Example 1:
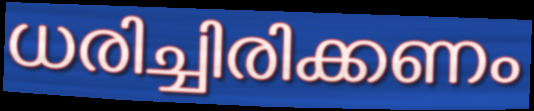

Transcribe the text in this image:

ധരിച്ചിരിക്കണം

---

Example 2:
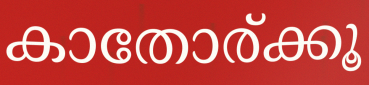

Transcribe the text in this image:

കാതോര്ക്കൂ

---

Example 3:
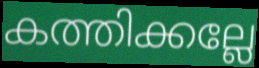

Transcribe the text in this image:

കത്തിക്കല്ലേ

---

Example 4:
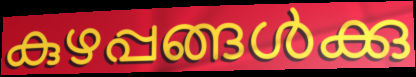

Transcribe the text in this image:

കുഴപ്പങ്ങൾക്കു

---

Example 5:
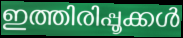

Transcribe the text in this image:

ഇത്തിരിപ്പൂക്കൾ